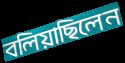
বলিয়াছিলেন